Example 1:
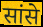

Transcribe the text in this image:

सांसे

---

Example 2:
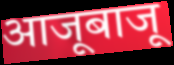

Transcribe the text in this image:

आजूबाजू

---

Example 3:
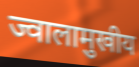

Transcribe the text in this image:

ज्वालामुखीय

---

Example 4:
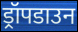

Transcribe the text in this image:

ड्रॉपडाउन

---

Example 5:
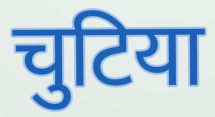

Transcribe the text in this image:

चुटिया